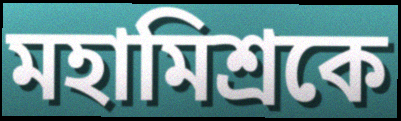
মহামিশ্রকে